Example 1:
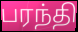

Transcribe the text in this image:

பரந்தி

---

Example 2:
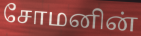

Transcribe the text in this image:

சோமனின்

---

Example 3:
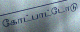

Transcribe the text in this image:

கோட்பாட்டோடு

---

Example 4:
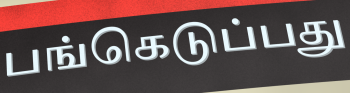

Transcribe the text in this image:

பங்கெடுப்பது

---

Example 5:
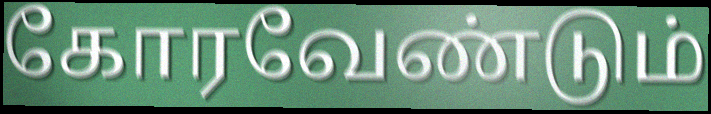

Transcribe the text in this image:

கோரவேண்டும்